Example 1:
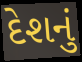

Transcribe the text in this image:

દેશનું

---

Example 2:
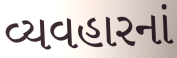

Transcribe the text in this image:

વ્યવહારનાં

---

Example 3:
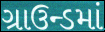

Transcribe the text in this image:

ગ્રાઉન્ડમાં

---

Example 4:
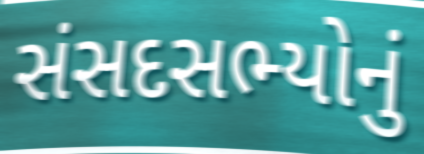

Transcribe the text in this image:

સંસદસભ્યોનું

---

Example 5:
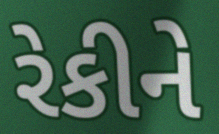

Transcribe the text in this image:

રેકીને